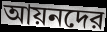
আয়নদের